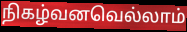
நிகழ்வனவெல்லாம்